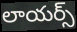
లాయర్స్